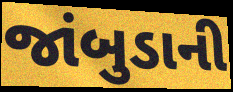
જાંબુડાની